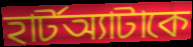
হার্টঅ্যাটাকে